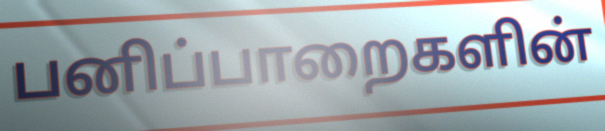
பனிப்பாறைகளின்